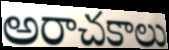
అరాచకాలు